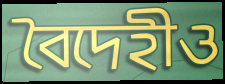
বৈদেহীও